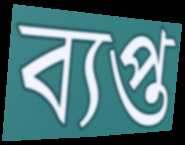
ব্যপ্ত